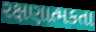
રક્ષણાત્મકતા